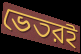
ভেতরই